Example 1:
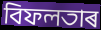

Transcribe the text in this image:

বিফলতাৰ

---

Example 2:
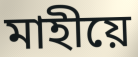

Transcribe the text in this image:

মাহীয়ে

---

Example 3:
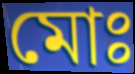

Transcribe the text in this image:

মোঃ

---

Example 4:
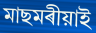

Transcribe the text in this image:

মাছমৰীয়াই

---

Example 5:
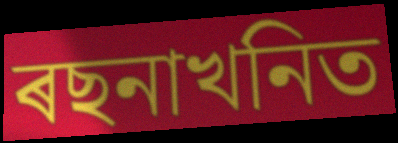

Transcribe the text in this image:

ৰছনাখনিত